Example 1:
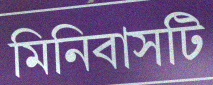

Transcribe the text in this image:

মিনিবাসটি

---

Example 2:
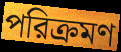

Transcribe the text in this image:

পরিক্রমণ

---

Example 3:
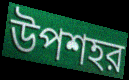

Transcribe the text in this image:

উপশহর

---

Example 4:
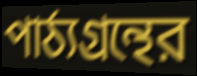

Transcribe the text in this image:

পাঠ্যগ্রন্থের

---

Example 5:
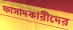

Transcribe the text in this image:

ফাসাদকারীদের